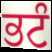
ਭਟੰ